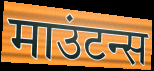
माउंटन्स